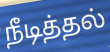
நீடித்தல்